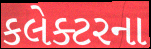
કલેક્ટરના